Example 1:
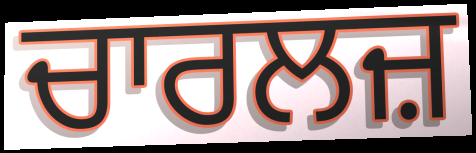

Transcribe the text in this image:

ਚਾਰਲਜ਼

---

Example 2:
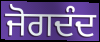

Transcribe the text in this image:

ਜੋਗਦੰਦ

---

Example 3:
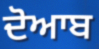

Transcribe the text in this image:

ਦੋਆਬ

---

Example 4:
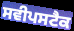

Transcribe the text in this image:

ਸਵੀਪਸਟੈਕ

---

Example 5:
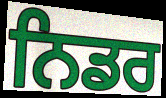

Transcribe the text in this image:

ਨਿਡਰ